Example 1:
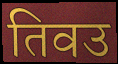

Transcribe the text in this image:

तिवउ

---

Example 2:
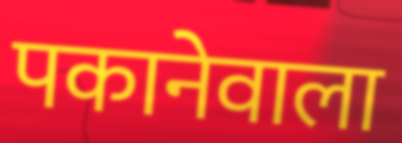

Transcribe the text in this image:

पकानेवाला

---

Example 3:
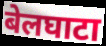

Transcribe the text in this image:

बेलघाटा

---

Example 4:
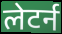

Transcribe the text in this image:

लेटर्न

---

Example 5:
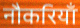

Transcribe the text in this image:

नौकरियाँ